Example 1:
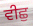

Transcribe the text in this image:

ਵੀਛੁ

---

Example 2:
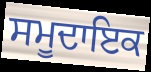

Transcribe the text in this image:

ਸਮੂਦਾਇਕ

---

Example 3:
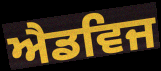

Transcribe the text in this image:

ਐਡਵਿਜ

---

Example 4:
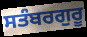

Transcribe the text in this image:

ਸਤੰਬਰਗੁਰੂ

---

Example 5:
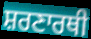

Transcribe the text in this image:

ਸ਼ਰਣਾਰਥੀ